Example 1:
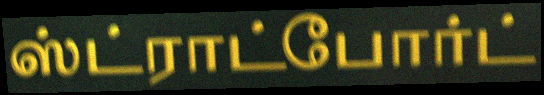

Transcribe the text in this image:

ஸ்ட்ராட்போர்ட்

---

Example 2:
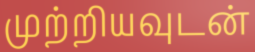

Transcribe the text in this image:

முற்றியவுடன்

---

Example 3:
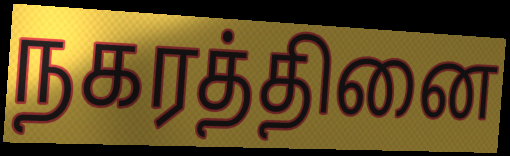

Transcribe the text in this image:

நகரத்தினை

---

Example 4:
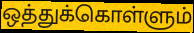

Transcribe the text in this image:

ஒத்துக்கொள்ளும்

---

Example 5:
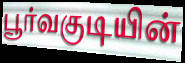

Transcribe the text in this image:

பூர்வகுடியின்